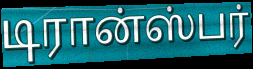
டிரான்ஸ்பர்